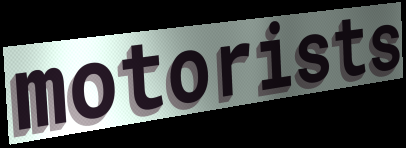
motorists